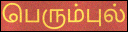
பெரும்புல்